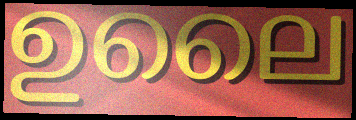
ഉലൈ